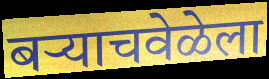
बर्‍याचवेळेला